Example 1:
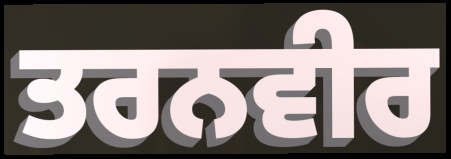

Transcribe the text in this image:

ਤਰਨਵੀਰ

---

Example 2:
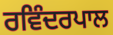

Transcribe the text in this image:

ਰਵਿੰਦਰਪਾਲ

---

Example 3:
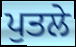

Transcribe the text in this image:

ਪੁਤਲੇ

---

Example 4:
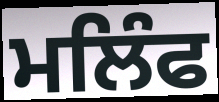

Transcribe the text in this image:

ਮਲਿੰਫ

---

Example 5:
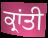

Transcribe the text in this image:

ਕ੍ਰਾਂਤੀ